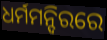
ଧର୍ମମନ୍ଦିରରେ